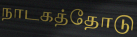
நாடகத்தோடு